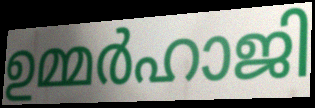
ഉമ്മർഹാജി